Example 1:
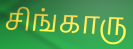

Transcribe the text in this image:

சிங்காரு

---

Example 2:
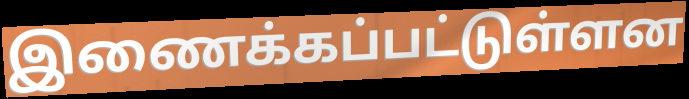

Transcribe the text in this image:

இணைக்கப்பட்டுள்ளன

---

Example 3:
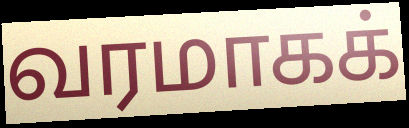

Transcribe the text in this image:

வரமாகக்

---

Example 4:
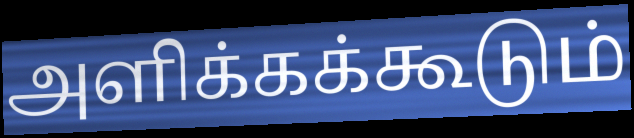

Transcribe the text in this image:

அளிக்கக்கூடும்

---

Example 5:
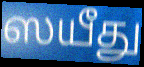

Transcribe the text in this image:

ஸயீது